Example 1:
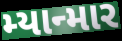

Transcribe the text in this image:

મ્યાન્માર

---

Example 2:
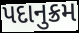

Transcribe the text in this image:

પદાનુક્રમ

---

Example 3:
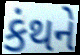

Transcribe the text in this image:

કંથને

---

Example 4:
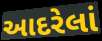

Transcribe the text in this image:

આદરેલાં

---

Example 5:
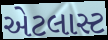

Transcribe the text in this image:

એટલાસ્ટ